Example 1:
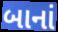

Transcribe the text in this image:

બાનાં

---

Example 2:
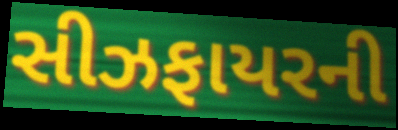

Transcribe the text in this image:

સીઝફાયરની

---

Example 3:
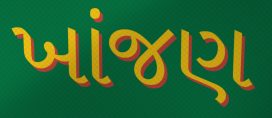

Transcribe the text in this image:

ખાંજણ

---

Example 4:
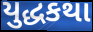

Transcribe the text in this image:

યુદ્ધકથા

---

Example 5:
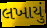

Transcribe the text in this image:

લખાયું